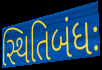
સ્થિતિબંધઃ